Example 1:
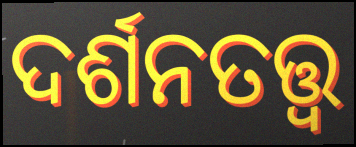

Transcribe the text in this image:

ଦର୍ଶନତତ୍ତ୍ଵ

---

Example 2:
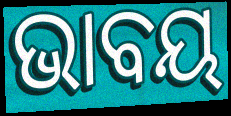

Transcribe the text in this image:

ଭାବୟ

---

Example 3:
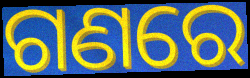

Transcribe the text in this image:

ଗଣରେ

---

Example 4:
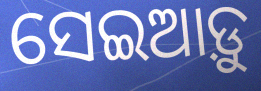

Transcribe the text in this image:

ସେଇଆଡ଼ୁ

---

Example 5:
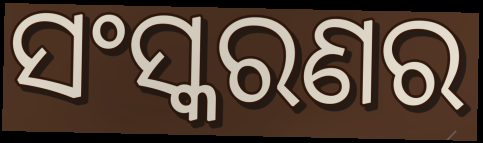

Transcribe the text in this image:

ସଂସ୍କରଣର